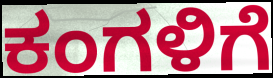
ಕಂಗಳಿಗೆ